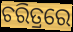
ଚରିତ୍ରରେ